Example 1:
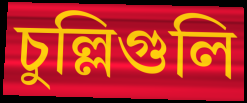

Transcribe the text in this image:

চুল্লিগুলি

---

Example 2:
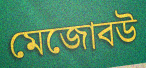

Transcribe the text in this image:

মেজোবউ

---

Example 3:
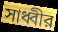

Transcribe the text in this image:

সাধ্বীর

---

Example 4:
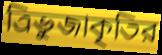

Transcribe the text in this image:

ত্রিভুজাকৃতির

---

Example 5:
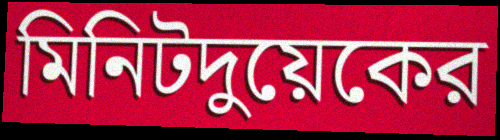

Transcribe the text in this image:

মিনিটদুয়েকের